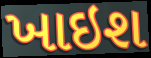
ખાઇશ